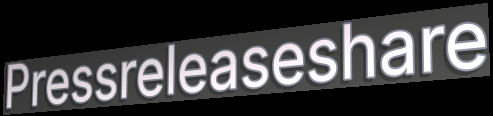
Pressreleaseshare